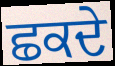
ਛਕਦੇ